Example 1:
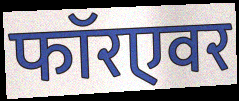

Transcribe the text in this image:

फॉरएवर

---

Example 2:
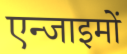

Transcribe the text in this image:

एन्जाइमों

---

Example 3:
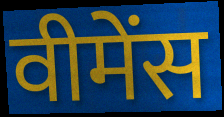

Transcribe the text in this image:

वीमेंस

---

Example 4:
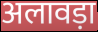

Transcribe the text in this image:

अलावड़ा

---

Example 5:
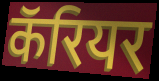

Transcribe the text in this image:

कॅरियर